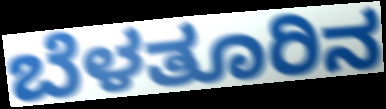
ಬೆಳತೂರಿನ